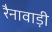
रैनावाड़ी